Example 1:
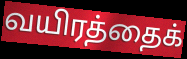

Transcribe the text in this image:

வயிரத்தைக்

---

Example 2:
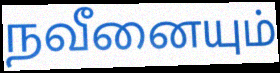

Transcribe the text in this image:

நவீனையும்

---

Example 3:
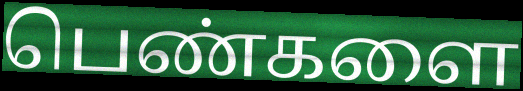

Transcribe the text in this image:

பெண்களை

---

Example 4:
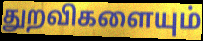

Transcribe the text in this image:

துறவிகளையும்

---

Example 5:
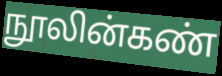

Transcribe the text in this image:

நூலின்கண்